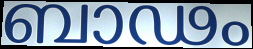
ബാഢം